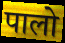
पालो